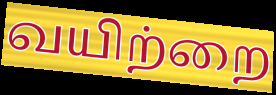
வயிற்றை